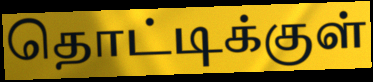
தொட்டிக்குள்